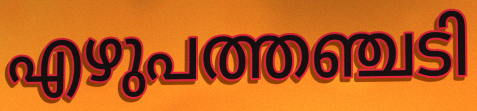
എഴുപത്തഞ്ചടി